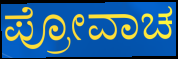
ಪ್ರೋವಾಚ